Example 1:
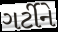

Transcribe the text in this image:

ગર્ટીને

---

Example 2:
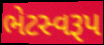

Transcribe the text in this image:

ભેટસ્વરૂપ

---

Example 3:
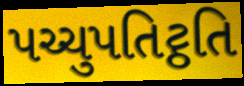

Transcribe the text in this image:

પચ્ચુપતિટ્ઠતિ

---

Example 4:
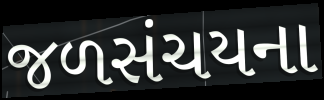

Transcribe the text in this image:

જળસંચયના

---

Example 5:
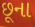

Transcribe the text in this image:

છૂના